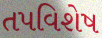
તપવિશેષ